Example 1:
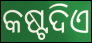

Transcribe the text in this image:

କଷ୍ଟଦିଏ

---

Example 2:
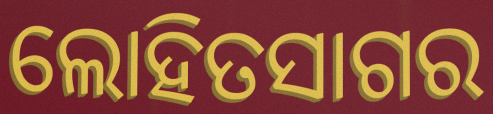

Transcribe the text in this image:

ଲୋହିତସାଗର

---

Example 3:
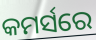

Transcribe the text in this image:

କମର୍ସରେ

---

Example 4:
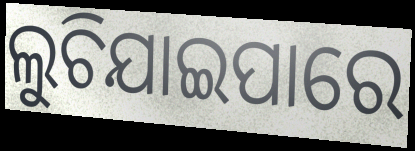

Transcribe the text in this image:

ଲୁଚିଯାଇପାରେ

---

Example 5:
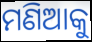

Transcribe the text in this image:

ମଣିଆକୁ